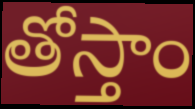
తోస్తాం